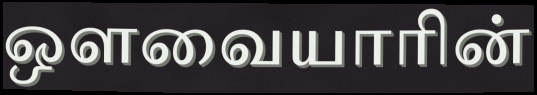
ஔவையாரின்